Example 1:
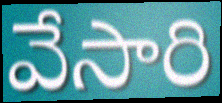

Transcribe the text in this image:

వేసారి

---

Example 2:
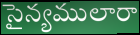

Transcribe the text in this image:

సైన్యములారా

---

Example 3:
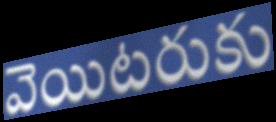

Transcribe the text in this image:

వెయిటరుకు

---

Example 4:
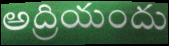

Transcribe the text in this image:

అద్రియందు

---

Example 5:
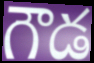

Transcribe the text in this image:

గౌడ